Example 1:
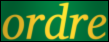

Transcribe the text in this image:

ordre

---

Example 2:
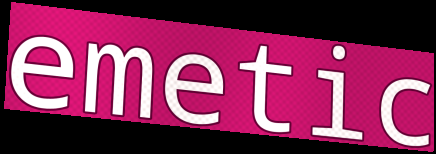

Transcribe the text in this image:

emetic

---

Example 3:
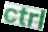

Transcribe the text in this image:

ctrl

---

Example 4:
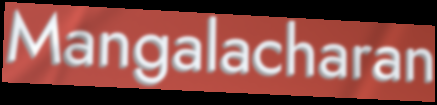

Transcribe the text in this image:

Mangalacharan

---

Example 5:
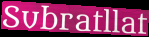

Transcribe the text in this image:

Subratllat